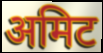
अमिट